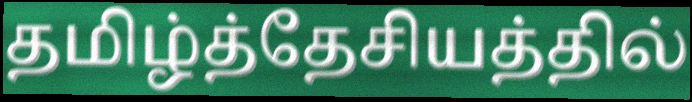
தமிழ்த்தேசியத்தில்